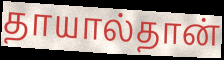
தாயால்தான்